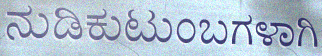
ನುಡಿಕುಟುಂಬಗಳಾಗಿ